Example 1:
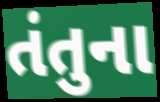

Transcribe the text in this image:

તંતુના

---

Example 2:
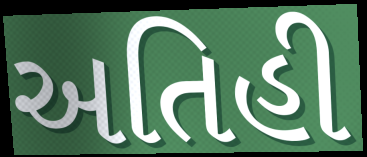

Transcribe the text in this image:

અતિહી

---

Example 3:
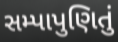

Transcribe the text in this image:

સમ્પાપુણિતું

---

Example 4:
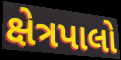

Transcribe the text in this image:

ક્ષેત્રપાલો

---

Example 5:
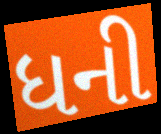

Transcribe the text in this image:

ધની